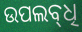
ଉପଲବ୍‌ଧି